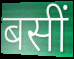
बसीं